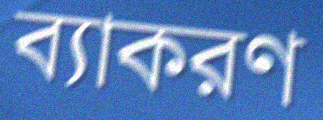
ব্যাকরণ